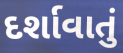
દર્શાવાતું